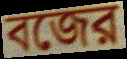
বজের